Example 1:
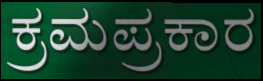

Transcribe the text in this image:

ಕ್ರಮಪ್ರಕಾರ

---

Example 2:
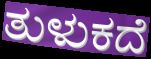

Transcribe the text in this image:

ತುಳುಕದೆ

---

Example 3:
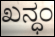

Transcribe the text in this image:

ಖನ್ಧಂ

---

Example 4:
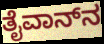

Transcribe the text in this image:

ತೈವಾನ್‌ನ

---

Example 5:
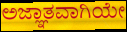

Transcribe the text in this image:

ಅಜ್ಞಾತವಾಗಿಯೇ